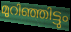
മുറിഞ്ഞിട്ടും